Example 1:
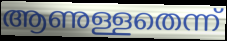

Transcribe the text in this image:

ആണുള്ളതെന്ന്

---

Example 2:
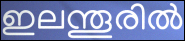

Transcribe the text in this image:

ഇലന്തൂരിൽ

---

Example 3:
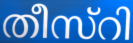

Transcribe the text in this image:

തീസ്റി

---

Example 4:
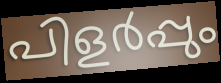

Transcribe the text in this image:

പിളർപ്പും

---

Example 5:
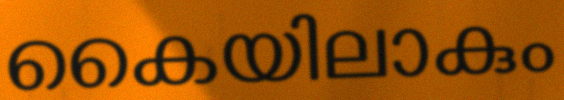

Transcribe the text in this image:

കൈയിലാകും